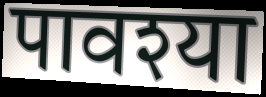
पावश्या